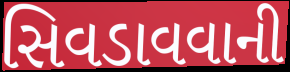
સિવડાવવાની